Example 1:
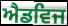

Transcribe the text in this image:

ਐਡਵਿਜ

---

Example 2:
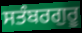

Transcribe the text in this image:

ਸਤੰਬਰਗੁਰੂ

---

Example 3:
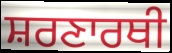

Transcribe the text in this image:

ਸ਼ਰਣਾਰਥੀ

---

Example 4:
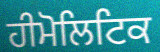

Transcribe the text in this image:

ਹੀਮੋਲਿਟਿਕ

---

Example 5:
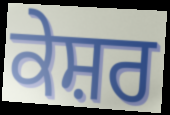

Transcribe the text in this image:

ਕੇਸ਼ਰ